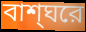
বাশ্ঘরে